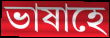
ভাষাহে